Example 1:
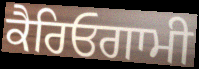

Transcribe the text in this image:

ਕੈਰਿਓਗਾਮੀ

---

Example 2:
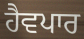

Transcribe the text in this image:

ਹੈਵਪਾਰ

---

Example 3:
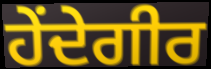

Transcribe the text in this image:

ਹੇਂਦੇਗੀਰ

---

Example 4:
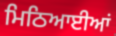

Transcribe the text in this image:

ਮਿਠਿਆਈਆਂ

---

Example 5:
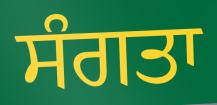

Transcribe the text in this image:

ਸੰਗਤਾ